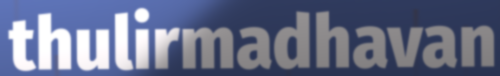
thulirmadhavan